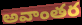
అవాంతర